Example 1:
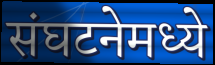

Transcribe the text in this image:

संघटनेमध्ये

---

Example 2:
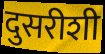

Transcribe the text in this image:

दुसरीशी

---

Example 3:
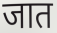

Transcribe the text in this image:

जात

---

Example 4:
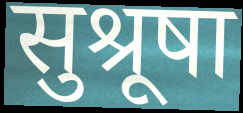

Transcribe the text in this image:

सुश्रूषा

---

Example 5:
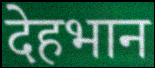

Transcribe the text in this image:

देहभान